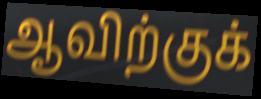
ஆவிற்குக்